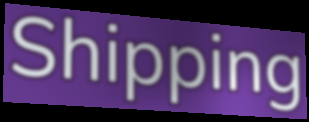
Shipping